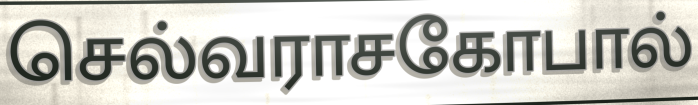
செல்வராசகோபால்